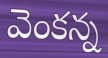
వెంకన్న